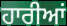
ਹਾਰੀਆਂ